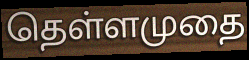
தெள்ளமுதை